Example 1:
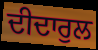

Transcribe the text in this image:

ਦੀਦਾਰੁਲ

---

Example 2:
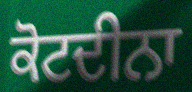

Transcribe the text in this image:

ਕੋਟਦੀਨਾ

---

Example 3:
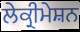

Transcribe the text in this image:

ਲੇਕ੍ਰੀਮੇਸ਼ਨ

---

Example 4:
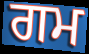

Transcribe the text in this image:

ਗਮ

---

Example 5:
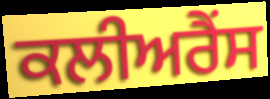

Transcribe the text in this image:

ਕਲੀਅਰੈਂਸ